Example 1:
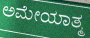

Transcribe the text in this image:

ಅಮೇಯಾತ್ಮ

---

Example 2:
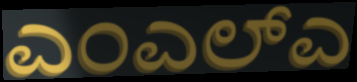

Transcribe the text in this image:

ಎಂಎಲ್ಎ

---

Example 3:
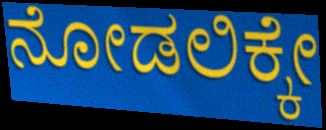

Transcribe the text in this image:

ನೋಡಲಿಕ್ಕೇ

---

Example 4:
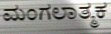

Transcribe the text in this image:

ಮಂಗಲಾತ್ಮಕ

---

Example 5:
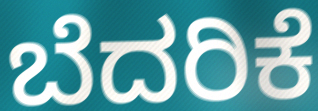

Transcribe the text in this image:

ಬೆದರಿಕೆ